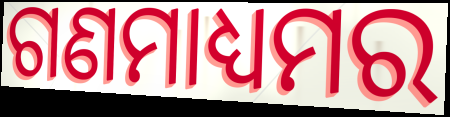
ଗଣମାଧ୍ୟମର